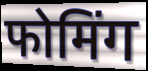
फोमिंग